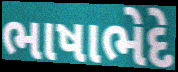
ભાષાભેદે